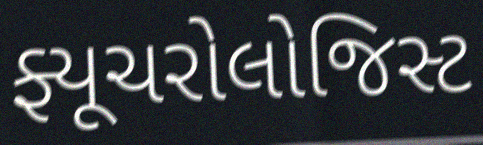
ફ્યૂચરોલોજિસ્ટ